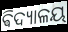
ଵିଦ୍ୟାଳୟ